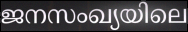
ജനസംഖ്യയിലെ